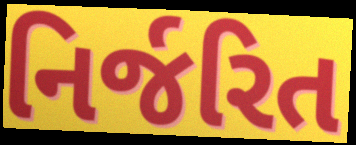
નિર્જરિત